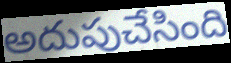
అదుపుచేసింది